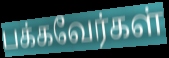
பக்கவேர்கள்